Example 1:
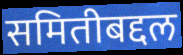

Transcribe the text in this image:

समितीबद्दल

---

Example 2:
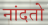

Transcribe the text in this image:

नांदतो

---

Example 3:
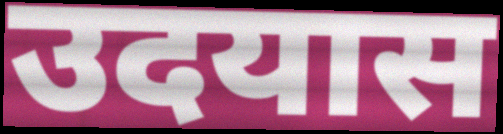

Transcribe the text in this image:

उदयास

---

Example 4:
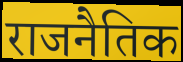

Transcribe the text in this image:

राजनैतिक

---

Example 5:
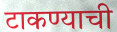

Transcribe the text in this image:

टाकण्याची